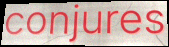
conjures